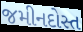
જમીનદોસ્ત